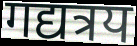
गद्यत्रय